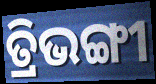
ତ୍ରିଭଙ୍ଗୀ